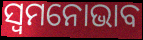
ସ୍ୱମନୋଭାବ